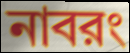
নাবরং